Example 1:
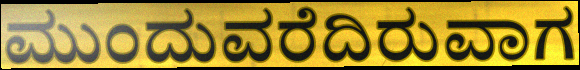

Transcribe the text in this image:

ಮುಂದುವರೆದಿರುವಾಗ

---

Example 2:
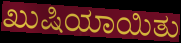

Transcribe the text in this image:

ಖುಷಿಯಾಯಿತು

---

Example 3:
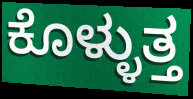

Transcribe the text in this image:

ಕೊಳ್ಳುತ್ತ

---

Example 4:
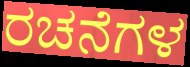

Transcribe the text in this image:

ರಚನೆಗಳ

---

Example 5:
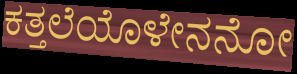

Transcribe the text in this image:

ಕತ್ತಲೆಯೊಳೇನನೋ